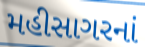
મહીસાગરનાં